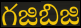
గజిబిజి